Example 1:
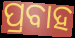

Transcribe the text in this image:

ପ୍ରବାହ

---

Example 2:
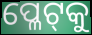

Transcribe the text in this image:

ପ୍ଳେଟ୍‌କୁ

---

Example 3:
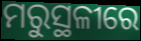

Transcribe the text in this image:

ମରୁସ୍ଥଳୀରେ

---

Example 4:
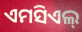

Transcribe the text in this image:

ଏମସିଏଲ୍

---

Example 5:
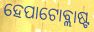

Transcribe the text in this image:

ହେପାଟୋବ୍ଲାଷ୍ଟ